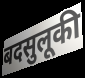
बदसुलूकी